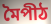
মৈপীঠ